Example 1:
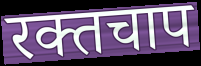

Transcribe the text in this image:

रक्तचाप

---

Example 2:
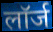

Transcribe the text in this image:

लॉर्ज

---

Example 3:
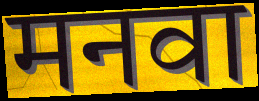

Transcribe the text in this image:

मनवा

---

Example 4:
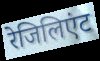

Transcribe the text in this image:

रेजिलिएंट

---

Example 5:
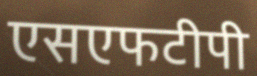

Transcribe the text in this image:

एसएफटीपी